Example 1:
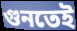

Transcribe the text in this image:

গুনতেই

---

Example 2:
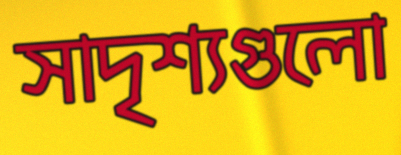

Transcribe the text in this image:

সাদৃশ্যগুলো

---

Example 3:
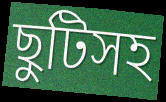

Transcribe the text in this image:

ছুটিসহ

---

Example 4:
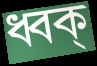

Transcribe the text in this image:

ধ্বক্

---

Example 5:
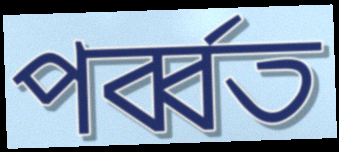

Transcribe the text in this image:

পর্ব্বত